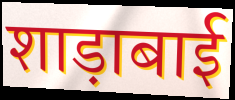
शाड़ाबाई